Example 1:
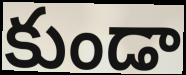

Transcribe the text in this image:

కుండా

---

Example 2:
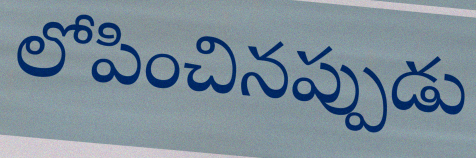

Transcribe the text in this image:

లోపించినప్పుడు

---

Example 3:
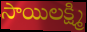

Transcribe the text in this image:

సాయిలక్ష్మి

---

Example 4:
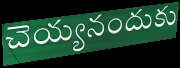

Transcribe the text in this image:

చెయ్యనందుకు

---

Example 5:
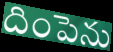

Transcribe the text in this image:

దింపెను